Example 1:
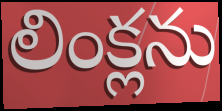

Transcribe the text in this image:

లింక్లను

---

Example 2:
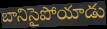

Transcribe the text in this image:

బానిసైపోయాడు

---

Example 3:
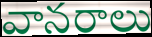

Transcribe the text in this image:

వానరాలు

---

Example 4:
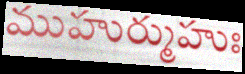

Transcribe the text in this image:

ముహుర్ముహుః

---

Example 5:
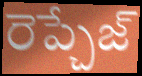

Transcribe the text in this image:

రెప్చేజ్